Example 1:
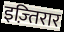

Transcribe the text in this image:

इज़्तिरार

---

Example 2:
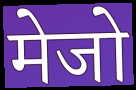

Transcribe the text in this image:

मेजो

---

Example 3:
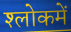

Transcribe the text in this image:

श्‍लोकमें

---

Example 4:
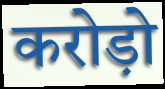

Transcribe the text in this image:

करोड़ो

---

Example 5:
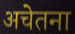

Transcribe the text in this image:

अचेतना